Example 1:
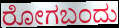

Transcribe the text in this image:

ರೋಗಬಂದು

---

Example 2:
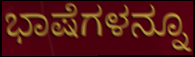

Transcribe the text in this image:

ಭಾಷೆಗಳನ್ನೂ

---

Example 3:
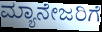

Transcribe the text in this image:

ಮ್ಯಾನೇಜರಿಗೆ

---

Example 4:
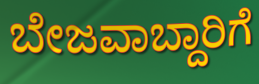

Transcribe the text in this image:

ಬೇಜವಾಬ್ದಾರಿಗೆ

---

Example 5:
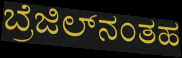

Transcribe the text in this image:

ಬ್ರೆಜಿಲ್‌ನಂತಹ